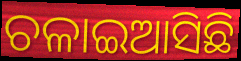
ଚଳାଇଆସିଛି